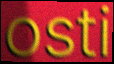
osti